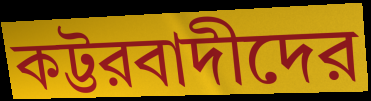
কট্টরবাদীদের